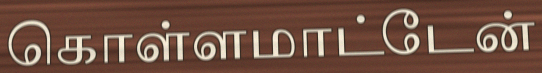
கொள்ளமாட்டேன்